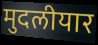
मुदलीयार